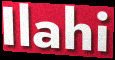
Ilahi